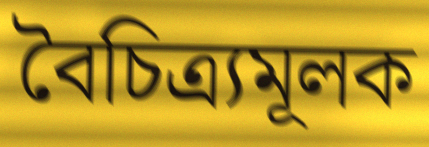
বৈচিত্ৰ্যমূলক